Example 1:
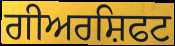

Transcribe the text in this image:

ਗੀਅਰਸ਼ਿਫਟ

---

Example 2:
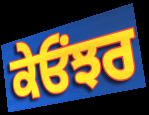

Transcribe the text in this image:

ਕੇਓਂਝਰ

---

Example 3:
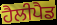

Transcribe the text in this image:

ਹੈਲੀਪੈਡ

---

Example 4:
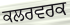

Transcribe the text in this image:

ਕਲਰਵਰਕ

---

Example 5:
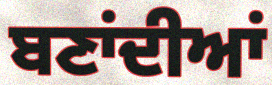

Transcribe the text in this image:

ਬਣਾਂਦੀਆਂ